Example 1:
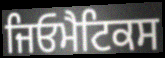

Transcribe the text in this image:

ਜਿਓਮੈਟਿਕਸ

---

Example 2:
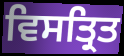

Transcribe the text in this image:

ਵਿਸਤ੍ਰਿਤ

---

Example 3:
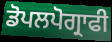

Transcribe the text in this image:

ਡੋਪਲਪੋਗ੍ਰਾਫੀ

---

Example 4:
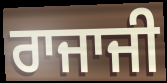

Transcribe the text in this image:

ਰਾਜਾਜੀ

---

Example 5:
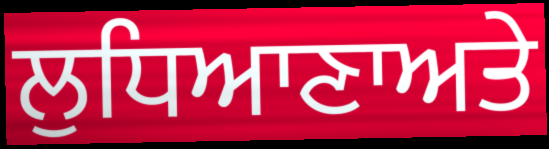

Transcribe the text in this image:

ਲੁਧਿਆਣਾਅਤੇ